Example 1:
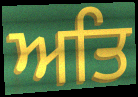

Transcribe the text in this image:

ਅਤਿ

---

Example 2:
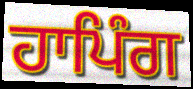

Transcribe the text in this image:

ਹਾਪਿੰਗ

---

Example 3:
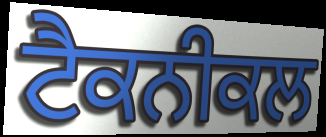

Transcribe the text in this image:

ਟੈਕਨੀਕਲ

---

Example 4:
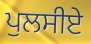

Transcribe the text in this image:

ਪੁਲਸੀਏ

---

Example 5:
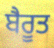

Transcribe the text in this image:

ਬੈਰੂਤ